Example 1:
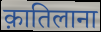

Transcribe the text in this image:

क़ातिलाना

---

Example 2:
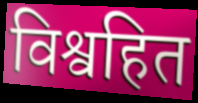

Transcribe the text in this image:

विश्वहित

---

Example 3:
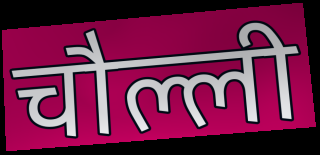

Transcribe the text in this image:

चौल्ली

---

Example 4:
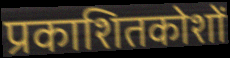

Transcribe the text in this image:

प्रकाशितकोशों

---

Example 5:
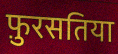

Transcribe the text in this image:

फ़ुरसतिया